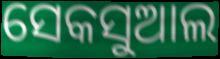
ସେକସୁଆଲ